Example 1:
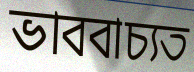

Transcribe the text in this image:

ভাববাচ্যত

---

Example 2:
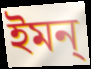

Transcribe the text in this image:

ইমন্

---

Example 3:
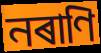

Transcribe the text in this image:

নৰাণি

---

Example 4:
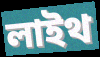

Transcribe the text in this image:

লাইথ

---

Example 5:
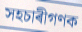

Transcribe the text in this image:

সহচাৰীগণক